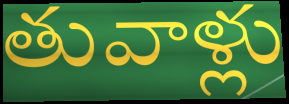
తువాళ్లు